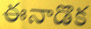
ఈనాడొక